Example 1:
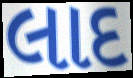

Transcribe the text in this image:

લાદ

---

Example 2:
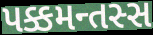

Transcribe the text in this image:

પક્કમન્તસ્સ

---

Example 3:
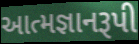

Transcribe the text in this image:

આત્મજ્ઞાનરૂપી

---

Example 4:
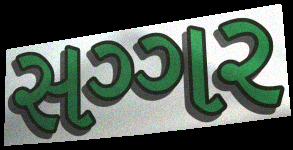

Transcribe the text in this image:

સગ્ગર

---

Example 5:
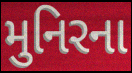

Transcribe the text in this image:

મુનિરના